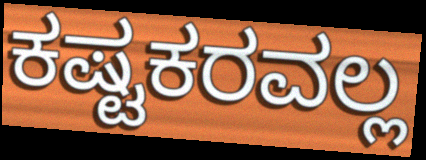
ಕಷ್ಟಕರವಲ್ಲ